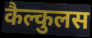
कैल्कुलस